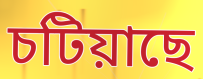
চটিয়াছে